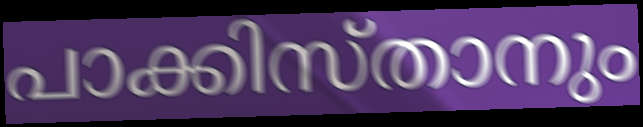
പാക്കിസ്താനും